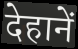
देहानें